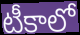
టీకాలో